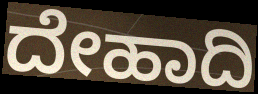
ದೇಹಾದಿ